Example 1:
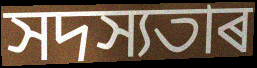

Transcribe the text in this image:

সদস্যতাৰ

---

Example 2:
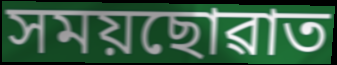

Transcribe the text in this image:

সময়ছোৱাত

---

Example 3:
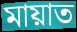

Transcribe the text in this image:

মায়াত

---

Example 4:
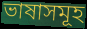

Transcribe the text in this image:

ভাষাসমূহ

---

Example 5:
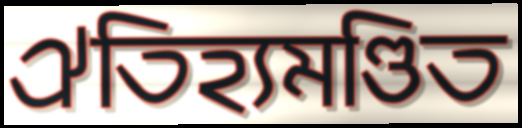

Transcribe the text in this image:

ঐতিহ্যমণ্ডিত